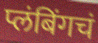
प्लंबिंगचं